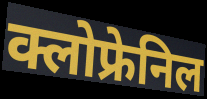
क्लोफ्रेनिल